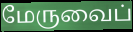
மேருவைப்